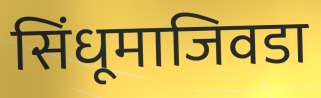
सिंधूमाजिवडा